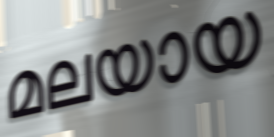
മലയായ